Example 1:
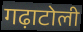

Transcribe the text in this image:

गढ़ाटोली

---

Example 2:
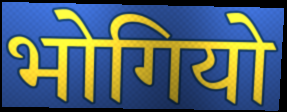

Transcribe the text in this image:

भोगियो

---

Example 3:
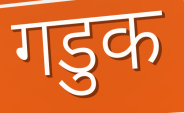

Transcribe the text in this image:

गडुक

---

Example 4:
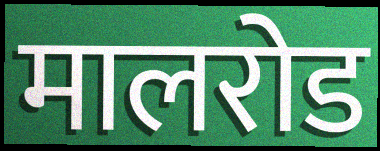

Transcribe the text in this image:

मालरोड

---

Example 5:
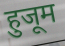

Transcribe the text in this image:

हुजूम